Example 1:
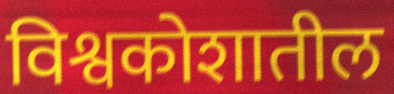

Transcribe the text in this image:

विश्वकोशातील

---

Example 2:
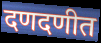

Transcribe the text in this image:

दणदणीत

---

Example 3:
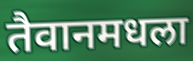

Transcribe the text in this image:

तैवानमधला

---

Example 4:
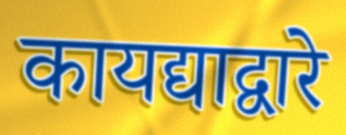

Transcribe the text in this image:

कायद्याद्वारे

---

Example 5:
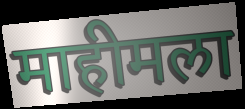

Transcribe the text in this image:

माहीमला